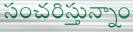
సంచరిస్తున్నాం